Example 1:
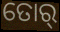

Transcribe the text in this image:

ତୋର୍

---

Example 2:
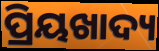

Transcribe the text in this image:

ପ୍ରିୟଖାଦ୍ୟ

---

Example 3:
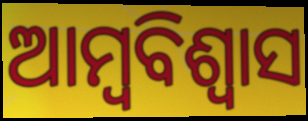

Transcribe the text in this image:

ଆମ୍ବବିଶ୍ଵାସ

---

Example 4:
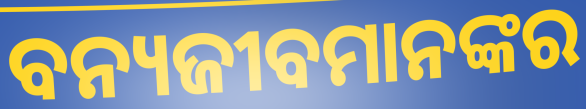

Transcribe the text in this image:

ବନ୍ୟଜୀବମାନଙ୍କର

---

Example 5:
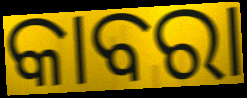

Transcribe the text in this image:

କାବରା